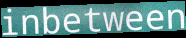
inbetween